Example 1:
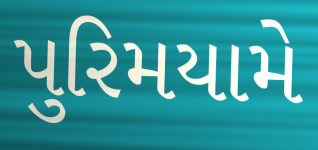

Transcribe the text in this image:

પુરિમયામે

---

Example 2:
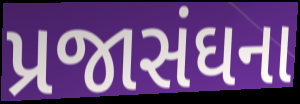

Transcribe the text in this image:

પ્રજાસંઘના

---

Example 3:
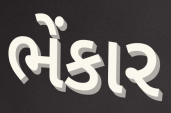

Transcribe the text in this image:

ભેંકાર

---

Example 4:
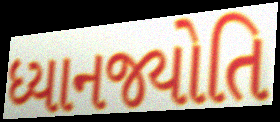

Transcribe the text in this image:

ધ્યાનજ્યોતિ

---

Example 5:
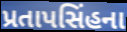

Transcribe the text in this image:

પ્રતાપસિંહના